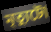
মৃত্যুটো